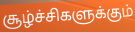
சூழ்ச்சிகளுக்கும்